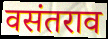
वसंतराव